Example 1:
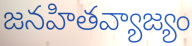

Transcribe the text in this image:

జనహితవ్యాజ్యం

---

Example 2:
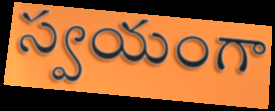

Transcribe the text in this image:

స్వయంగా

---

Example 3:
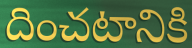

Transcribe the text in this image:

దించటానికి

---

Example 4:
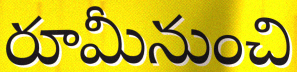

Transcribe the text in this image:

రూమీనుంచి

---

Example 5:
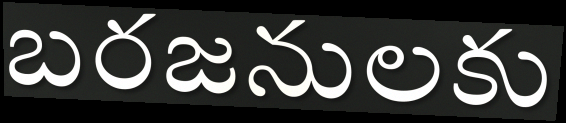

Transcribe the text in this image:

బరజనులకు